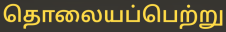
தொலையப்பெற்று